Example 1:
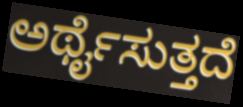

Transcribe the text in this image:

ಅರ್ಥೈಸುತ್ತದೆ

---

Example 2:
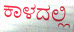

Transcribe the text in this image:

ಕಾಳದಲ್ಲಿ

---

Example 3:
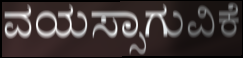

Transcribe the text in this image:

ವಯಸ್ಸಾಗುವಿಕೆ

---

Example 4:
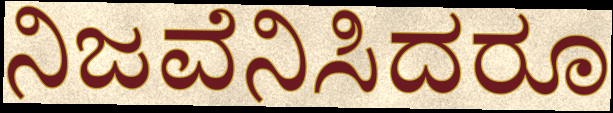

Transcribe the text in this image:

ನಿಜವೆನಿಸಿದರೂ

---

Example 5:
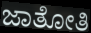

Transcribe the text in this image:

ಜಾತೋತಿ